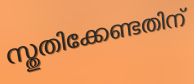
സ്തുതിക്കേണ്ടതിന്